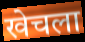
खेचला